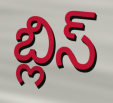
బ్లిస్